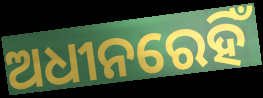
ଅଧୀନରେହିଁ